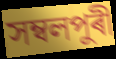
সম্বলপুৰী